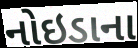
નોઇડાના